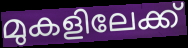
മുകളിലേക്ക്